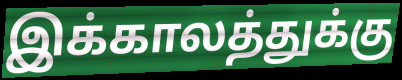
இக்காலத்துக்கு